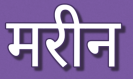
मरीन